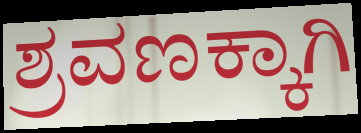
ಶ್ರವಣಕ್ಕಾಗಿ